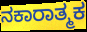
ನಕಾರಾತ್ಮಕ